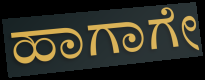
ಹಾಗಾಗೇ